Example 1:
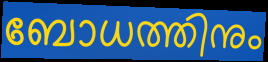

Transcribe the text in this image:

ബോധത്തിനും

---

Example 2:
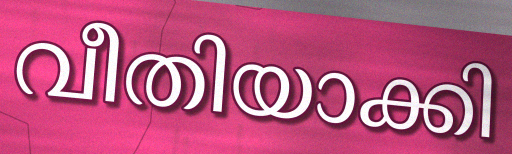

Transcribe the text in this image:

വീതിയാക്കി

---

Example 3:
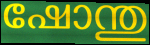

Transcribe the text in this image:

ഷോന്തു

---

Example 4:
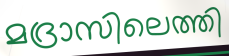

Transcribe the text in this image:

മദ്രാസിലെത്തി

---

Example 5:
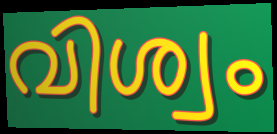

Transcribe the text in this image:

വിശ്വം